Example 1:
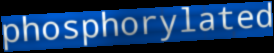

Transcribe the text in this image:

phosphorylated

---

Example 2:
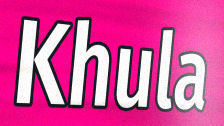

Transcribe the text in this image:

Khula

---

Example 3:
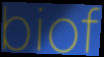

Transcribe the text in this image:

biof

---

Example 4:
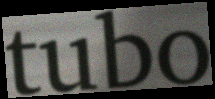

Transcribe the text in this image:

tubo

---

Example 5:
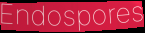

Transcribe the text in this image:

Endospores